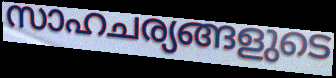
സാഹചര്യങ്ങളുടെ